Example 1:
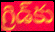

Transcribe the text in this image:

గ్రిడ్‌కు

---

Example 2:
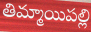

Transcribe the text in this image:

తిమ్మాయిపల్లి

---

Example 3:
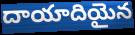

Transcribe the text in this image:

దాయాదియైన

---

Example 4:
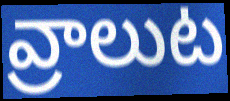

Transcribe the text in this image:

వ్రాలుట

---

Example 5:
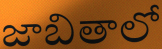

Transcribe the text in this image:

జాబితాలో